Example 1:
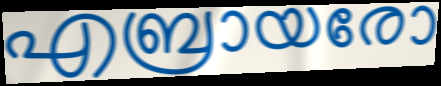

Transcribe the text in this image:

എബ്രായരോ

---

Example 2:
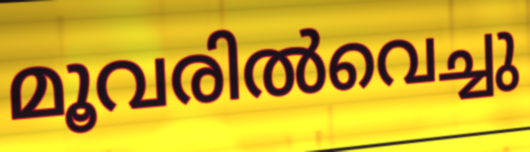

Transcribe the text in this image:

മൂവരിൽവെച്ചു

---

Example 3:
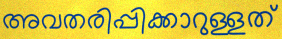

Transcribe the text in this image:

അവതരിപ്പിക്കാറുള്ളത്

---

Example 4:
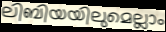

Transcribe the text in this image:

ലിബിയയിലുമെല്ലാം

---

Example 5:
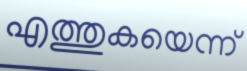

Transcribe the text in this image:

എത്തുകയെന്ന്